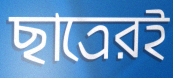
ছাত্রেরই